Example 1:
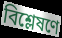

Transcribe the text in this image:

বিশ্লেষণে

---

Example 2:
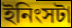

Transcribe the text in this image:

ইনিংসটা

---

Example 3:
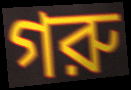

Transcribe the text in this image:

গরু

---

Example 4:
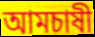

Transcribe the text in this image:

আমচাষী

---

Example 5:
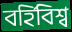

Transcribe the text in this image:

বর্হিবিশ্ব